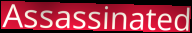
Assassinated